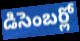
డిసెంబర్లో